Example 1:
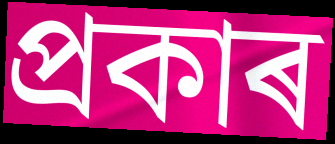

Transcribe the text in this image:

প্ৰকাৰ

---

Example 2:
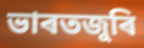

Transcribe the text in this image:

ভাৰতজুৰি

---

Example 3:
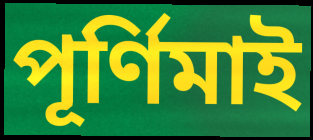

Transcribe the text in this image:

পূৰ্ণিমাই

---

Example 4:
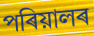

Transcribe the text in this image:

পৰিয়ালৰ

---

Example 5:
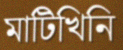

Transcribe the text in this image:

মাটিখিনি